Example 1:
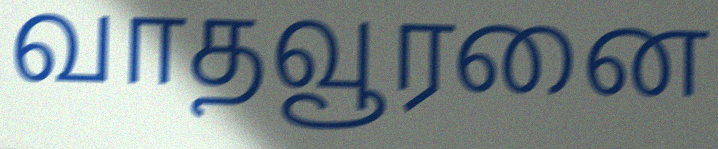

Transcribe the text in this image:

வாதவூரனை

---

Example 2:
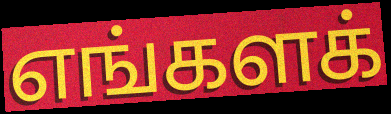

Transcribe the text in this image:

எங்களக்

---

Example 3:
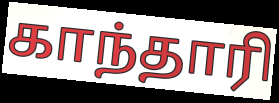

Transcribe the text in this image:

காந்தாரி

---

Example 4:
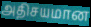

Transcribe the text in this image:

அதிசயமான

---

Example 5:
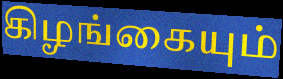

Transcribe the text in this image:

கிழங்கையும்